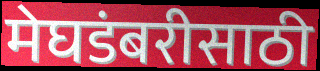
मेघडंबरीसाठी